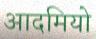
आदमियो